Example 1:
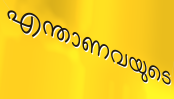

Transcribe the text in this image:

എന്താണവയുടെ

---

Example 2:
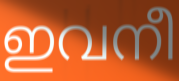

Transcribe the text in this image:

ഇവനീ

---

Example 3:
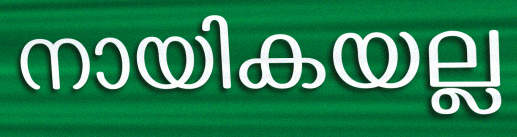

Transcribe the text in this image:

നായികയല്ല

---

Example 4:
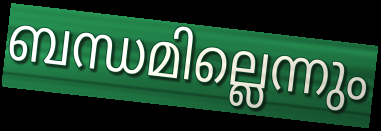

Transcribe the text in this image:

ബന്ധമില്ലെന്നും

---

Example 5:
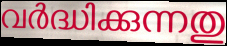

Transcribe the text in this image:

വർദ്ധിക്കുന്നതു